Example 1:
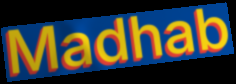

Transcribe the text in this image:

Madhab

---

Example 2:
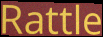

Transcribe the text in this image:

Rattle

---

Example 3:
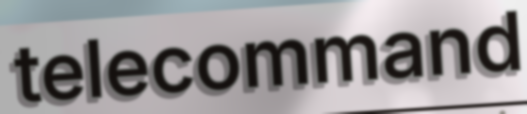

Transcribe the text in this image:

telecommand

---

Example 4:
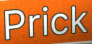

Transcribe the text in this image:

Prick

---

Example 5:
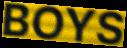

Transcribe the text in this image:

BOYS